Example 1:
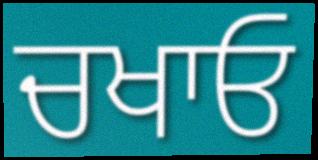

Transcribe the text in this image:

ਚਖਾਓ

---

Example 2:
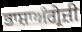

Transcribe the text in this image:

ਭਾਸ਼ਾਅੰਗ੍ਰੇਜ਼ੀ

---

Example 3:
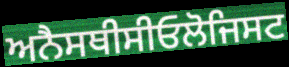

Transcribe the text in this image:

ਅਨੈਸਥੀਸੀਓਲੋਜਿਸਟ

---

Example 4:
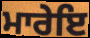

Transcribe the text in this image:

ਮਾਰੇਇ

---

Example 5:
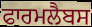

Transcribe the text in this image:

ਫਾਰਮਲੈਬਸ